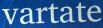
vartate